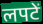
लपटें